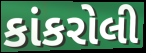
કાંકરોલી